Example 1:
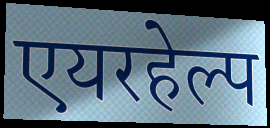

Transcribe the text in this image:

एयरहेल्प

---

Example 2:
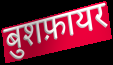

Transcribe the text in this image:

बुशफ़ायर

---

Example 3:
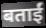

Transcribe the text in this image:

बताईं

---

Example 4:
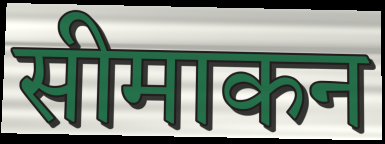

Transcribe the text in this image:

सीमाकन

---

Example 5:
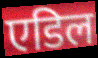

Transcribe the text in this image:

एडिल